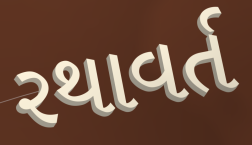
રથાવર્ત